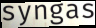
syngas